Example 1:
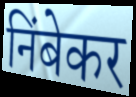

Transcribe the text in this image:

निंबेकर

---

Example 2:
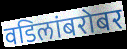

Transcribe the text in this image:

वडिलांबरोबर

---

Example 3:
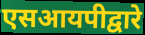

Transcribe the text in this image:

एसआयपीद्वारे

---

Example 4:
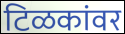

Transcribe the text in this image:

टिळकांवर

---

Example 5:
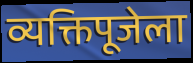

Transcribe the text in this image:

व्यक्तिपूजेला